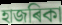
হাজৰিকা